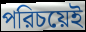
পরিচয়েই